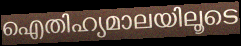
ഐതിഹ്യമാലയിലൂടെ